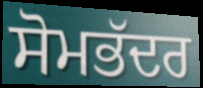
ਸੋਮਭੱਦਰ